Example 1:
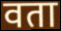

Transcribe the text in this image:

वता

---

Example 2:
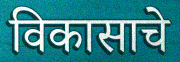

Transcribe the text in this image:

विकासाचे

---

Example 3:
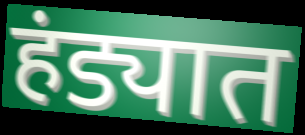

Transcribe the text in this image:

हंड्यात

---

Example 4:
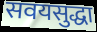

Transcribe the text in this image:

सवयसुद्धा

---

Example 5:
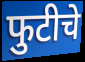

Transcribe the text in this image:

फुटीचे